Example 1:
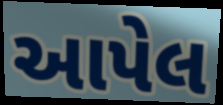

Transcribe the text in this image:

આપેલ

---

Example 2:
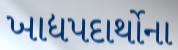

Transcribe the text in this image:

ખાદ્યપદાર્થોના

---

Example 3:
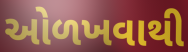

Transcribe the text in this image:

ઓળખવાથી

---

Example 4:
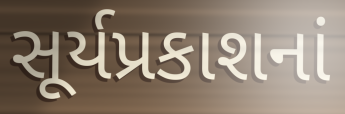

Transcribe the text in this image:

સૂર્યપ્રકાશનાં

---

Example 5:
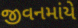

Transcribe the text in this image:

જીવનમાંયે